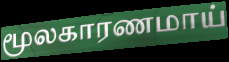
மூலகாரணமாய்